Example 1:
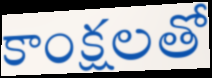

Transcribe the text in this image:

కాంక్షలతో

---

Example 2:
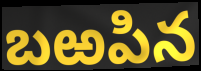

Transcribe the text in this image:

బఱపిన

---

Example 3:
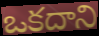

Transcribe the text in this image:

ఒకదాని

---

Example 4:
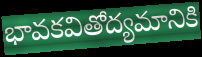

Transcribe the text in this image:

భావకవితోద్యమానికి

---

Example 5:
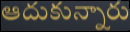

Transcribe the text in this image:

ఆదుకున్నారు